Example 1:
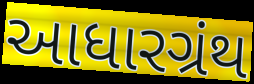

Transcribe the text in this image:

આધારગ્રંથ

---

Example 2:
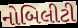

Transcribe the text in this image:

નોબિલીટી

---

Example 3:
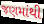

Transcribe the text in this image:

જણમાંથી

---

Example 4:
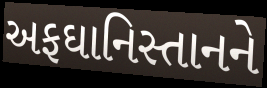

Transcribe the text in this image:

અફઘાનિસ્તાનને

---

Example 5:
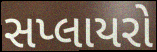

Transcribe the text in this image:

સપ્લાયરો